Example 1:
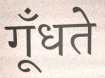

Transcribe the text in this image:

गूँधते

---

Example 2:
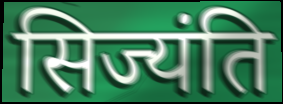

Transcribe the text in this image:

सिज्यंति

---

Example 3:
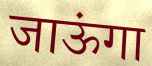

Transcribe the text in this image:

जाऊंगा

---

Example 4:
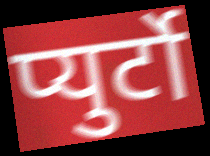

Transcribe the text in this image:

प्युर्टो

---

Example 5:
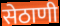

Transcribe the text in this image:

सेठाणी